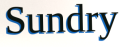
Sundry